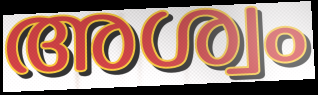
അശ്വം